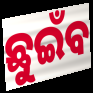
ଛୁଇଁବ